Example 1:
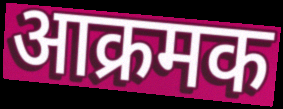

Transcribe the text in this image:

आक्रमक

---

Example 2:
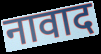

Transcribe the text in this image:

नावाद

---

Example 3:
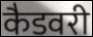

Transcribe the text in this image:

कैडवरी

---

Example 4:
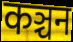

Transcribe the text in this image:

कञ्चन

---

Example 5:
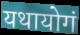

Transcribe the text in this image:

यथायोगं